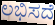
ಲಭಿಸದೆ